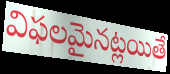
విఫలమైనట్లయితే